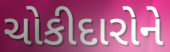
ચોકીદારોને